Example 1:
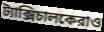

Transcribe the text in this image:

ট্যাক্সিচালকেরাও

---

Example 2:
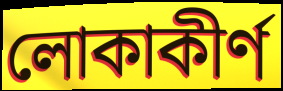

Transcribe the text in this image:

লোকাকীর্ণ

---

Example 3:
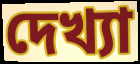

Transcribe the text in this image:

দেখ্যা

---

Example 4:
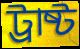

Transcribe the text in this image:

ট্রাষ্ট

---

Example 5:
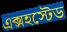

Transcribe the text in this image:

এক্সহস্টেড